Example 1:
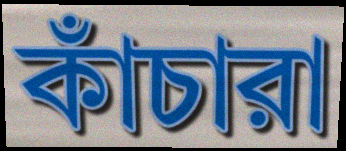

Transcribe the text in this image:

কাঁচারা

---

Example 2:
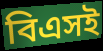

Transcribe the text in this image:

বিএসই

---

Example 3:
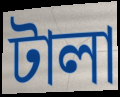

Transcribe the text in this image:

টালা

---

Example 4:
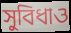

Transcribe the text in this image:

সুবিধাও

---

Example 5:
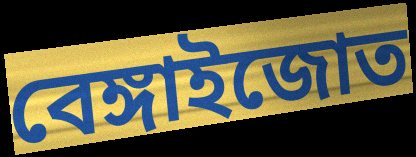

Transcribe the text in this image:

বেঙ্গাইজোত